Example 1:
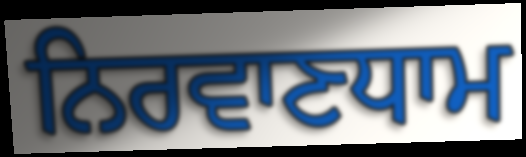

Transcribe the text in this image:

ਨਿਰਵਾਣਧਾਮ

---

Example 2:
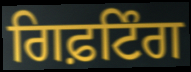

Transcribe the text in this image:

ਗਿਫ਼ਟਿੰਗ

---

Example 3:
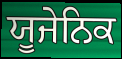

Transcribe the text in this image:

ਯੂਜੇਨਿਕ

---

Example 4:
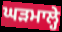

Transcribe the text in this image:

ਘੜਮਾਲ੍ਹੇ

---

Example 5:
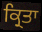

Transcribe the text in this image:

ਕ੍ਰਿਤਾ